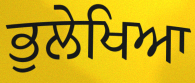
ਭੁਲੇਖਿਆ